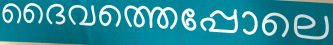
ദൈവത്തെപ്പോലെ